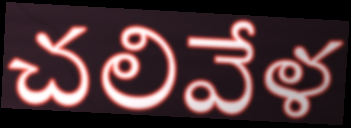
చలివేళ